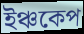
ইঞ্চকেপ